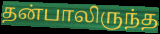
தன்பாலிருந்த